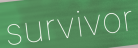
survivor